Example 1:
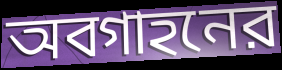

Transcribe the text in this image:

অবগাহনের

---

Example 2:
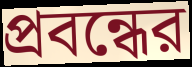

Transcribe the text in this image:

প্রবন্ধের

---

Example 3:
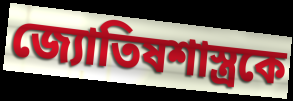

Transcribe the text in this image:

জ্যোতিষশাস্ত্রকে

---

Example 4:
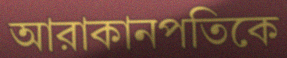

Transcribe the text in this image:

আরাকানপতিকে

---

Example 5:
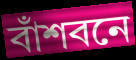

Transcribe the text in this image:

বাঁশবনে